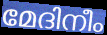
മേദിനീം